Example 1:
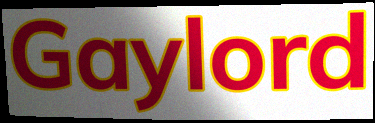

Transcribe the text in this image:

Gaylord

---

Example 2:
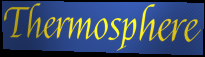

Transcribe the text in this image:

Thermosphere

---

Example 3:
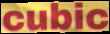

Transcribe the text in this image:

cubic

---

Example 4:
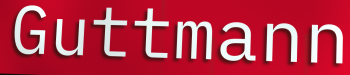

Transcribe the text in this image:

Guttmann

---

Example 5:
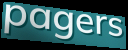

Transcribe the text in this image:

pagers